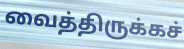
வைத்திருக்கச்